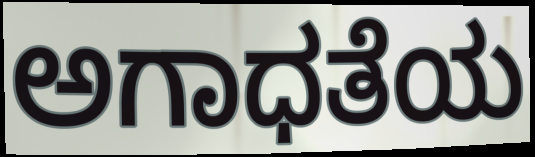
ಅಗಾಧತೆಯ